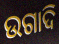
ଉଗାଦି